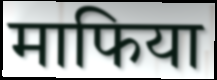
माफिया